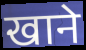
खाने